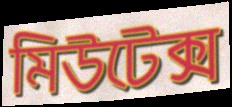
মিউটেক্স